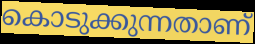
കൊടുക്കുന്നതാണ്